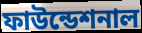
ফাউন্ডেশনাল